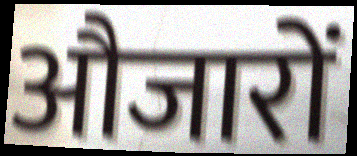
औजारों